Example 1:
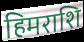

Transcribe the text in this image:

हिमराशि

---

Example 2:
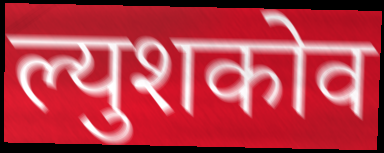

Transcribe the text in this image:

ल्युशकोव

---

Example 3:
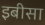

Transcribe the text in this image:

इबीसा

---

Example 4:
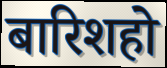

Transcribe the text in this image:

बारिशहो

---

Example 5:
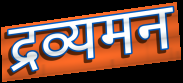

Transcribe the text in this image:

द्रव्यमन